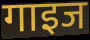
गाइज